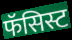
फॅसिस्ट